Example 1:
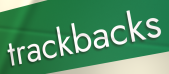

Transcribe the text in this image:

trackbacks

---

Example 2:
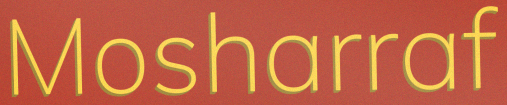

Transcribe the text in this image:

Mosharraf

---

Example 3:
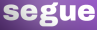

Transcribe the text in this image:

segue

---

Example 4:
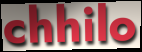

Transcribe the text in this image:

chhilo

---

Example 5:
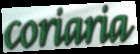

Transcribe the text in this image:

coriaria